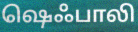
ஷெஃபாலி